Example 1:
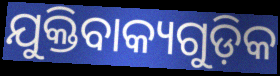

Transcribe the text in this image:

ଯୁକ୍ତିବାକ୍ୟଗୁଡ଼ିକ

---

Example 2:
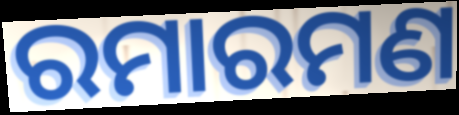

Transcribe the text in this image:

ରମାରମଣ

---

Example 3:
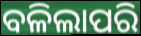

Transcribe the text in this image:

ବଳିଲାପରି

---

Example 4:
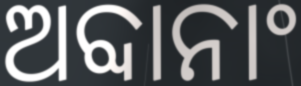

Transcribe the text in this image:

ଅବ୍ଦାନାଂ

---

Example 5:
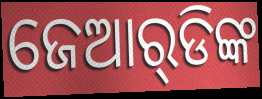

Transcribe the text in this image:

ଜେଆର୍‌ଡିଙ୍କ